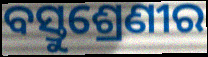
ବସ୍ତୁଶ୍ରେଣୀର